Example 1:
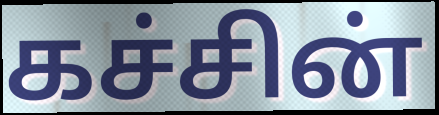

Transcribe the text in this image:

கச்சின்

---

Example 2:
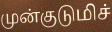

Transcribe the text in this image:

முன்குடுமிச்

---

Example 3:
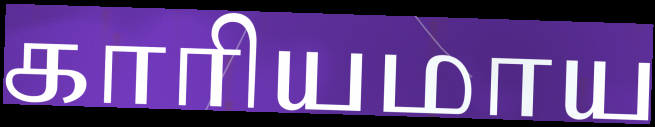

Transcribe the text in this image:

காரியமாய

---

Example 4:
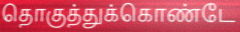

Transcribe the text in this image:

தொகுத்துக்கொண்டே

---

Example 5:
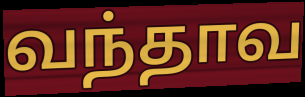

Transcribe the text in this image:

வந்தாவ